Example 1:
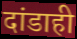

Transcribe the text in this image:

दांडाही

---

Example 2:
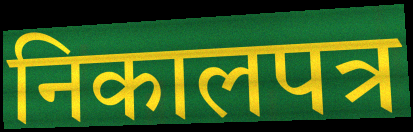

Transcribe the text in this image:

निकालपत्र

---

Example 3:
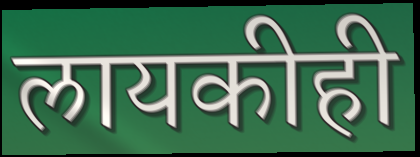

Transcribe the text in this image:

लायकीही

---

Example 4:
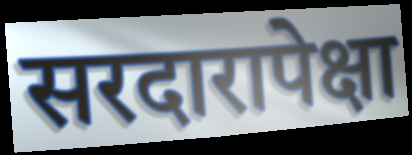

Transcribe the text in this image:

सरदारापेक्षा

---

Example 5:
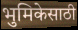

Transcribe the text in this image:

भुमिकेसाठी